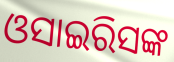
ଓସାଇରିସଙ୍କ